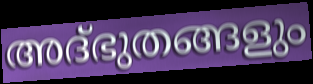
അദ്ഭുതങ്ങളും